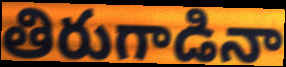
తిరుగాడినా